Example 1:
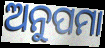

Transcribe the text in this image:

ଅନୁପମା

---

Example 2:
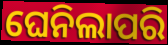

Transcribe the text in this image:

ଘେନିଲାପରି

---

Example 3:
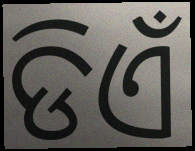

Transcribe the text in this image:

ଡିଏଁ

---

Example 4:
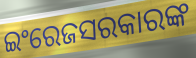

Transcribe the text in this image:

ଇଂରେଜସରକାରଙ୍କ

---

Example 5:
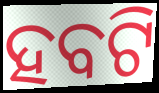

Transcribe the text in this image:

ହବଟି